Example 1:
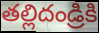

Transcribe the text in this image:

తల్లిదండ్రికి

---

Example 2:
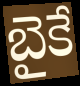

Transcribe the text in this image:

బైకే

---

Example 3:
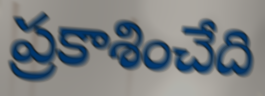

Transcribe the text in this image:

ప్రకాశించేది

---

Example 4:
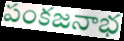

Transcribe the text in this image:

పంకజనాభ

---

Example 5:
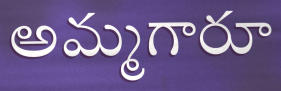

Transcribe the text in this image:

అమ్మగారూ